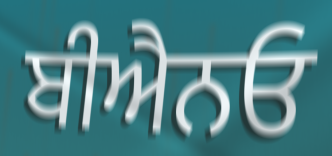
ਬੀਐਨਓ